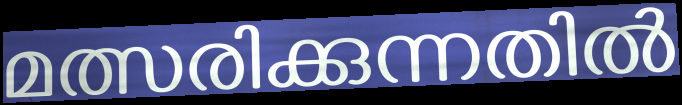
മത്സരിക്കുന്നതിൽ